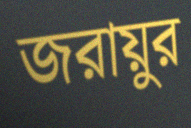
জরায়ুর